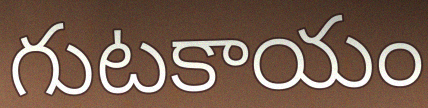
గుటకాయం